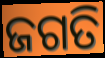
ଜଗତି